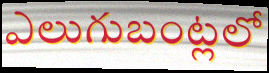
ఎలుగుబంట్లలో